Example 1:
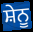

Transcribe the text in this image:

ਸ਼ੇਨੂ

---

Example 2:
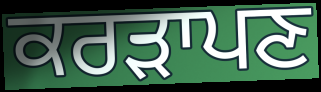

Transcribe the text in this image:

ਕਰੜਾਪਣ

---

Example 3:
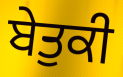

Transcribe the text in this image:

ਬੇਤੁਕੀ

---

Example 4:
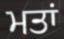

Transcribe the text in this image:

ਮਤਾਂ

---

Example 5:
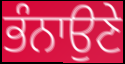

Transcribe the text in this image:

ਭੰਨਾਉਣੇ